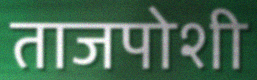
ताजपोशी